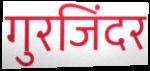
गुरजिंदर